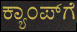
ಕ್ಯಾಂಪ್‍ಗೆ